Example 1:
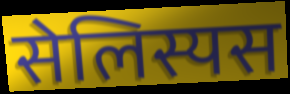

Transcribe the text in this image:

सेलिस्यस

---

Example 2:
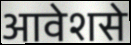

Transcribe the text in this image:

आवेशसे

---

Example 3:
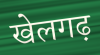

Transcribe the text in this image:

खेलगढ़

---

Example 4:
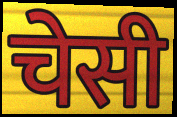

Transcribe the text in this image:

चेसी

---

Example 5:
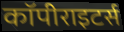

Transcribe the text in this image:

कॉपीराइटर्स